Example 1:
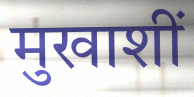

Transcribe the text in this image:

मुखाशीं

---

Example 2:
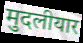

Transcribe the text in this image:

मुदलीयार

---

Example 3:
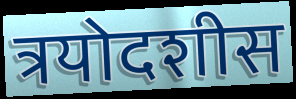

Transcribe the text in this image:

त्रयोदशीस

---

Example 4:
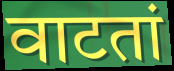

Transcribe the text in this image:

वाटतां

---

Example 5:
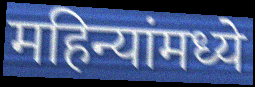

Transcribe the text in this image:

महिन्यांमध्ये